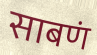
साबणं